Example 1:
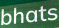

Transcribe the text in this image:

bhats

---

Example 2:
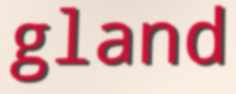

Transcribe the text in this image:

gland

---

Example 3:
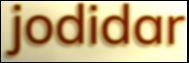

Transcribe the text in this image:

jodidar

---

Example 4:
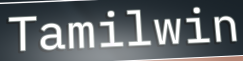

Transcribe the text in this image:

Tamilwin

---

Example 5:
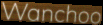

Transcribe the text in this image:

Wanchoo